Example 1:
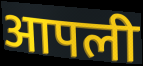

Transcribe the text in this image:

आपली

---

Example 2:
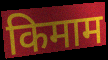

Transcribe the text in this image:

किमाम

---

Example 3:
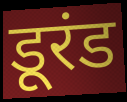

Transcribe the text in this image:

डूरंड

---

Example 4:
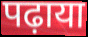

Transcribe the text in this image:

पढ़ाया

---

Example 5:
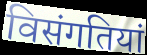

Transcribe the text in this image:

विसंगतियां